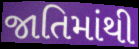
જાતિમાંથી